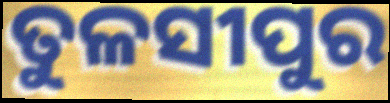
ତୁଳସୀପୁର